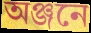
অঞ্জনে